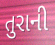
તુરાની